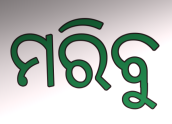
ମରିବୁ